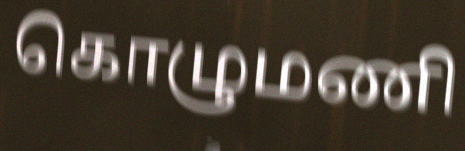
கொழுமணி